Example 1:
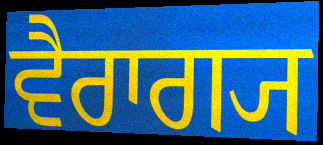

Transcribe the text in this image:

ਵੈਰਾਗ੍ਯ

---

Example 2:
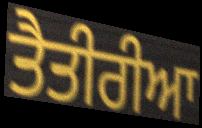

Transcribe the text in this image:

ਤੈਤੀਰੀਆ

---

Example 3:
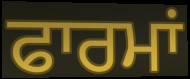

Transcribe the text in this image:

ਫਾਰਮਾਂ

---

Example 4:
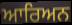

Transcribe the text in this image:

ਆਰਿਅਨ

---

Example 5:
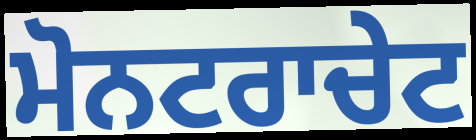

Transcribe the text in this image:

ਮੋਨਟਰਾਚੇਟ